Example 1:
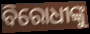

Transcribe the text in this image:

ବିରୋଧୀଙ୍କୁ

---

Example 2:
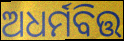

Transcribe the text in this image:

ଅଧର୍ମବିତ୍ତ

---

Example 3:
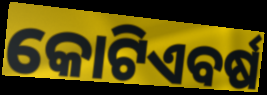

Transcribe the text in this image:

କୋଟିଏବର୍ଷ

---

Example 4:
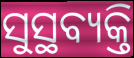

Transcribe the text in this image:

ସୁସ୍ଥବ୍ୟକ୍ତି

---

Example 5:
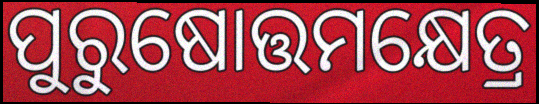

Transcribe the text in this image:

ପୁରୁଷୋତ୍ତମକ୍ଷେତ୍ର